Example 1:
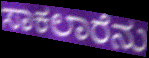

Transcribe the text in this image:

ಸಾಕಲಾರೆನು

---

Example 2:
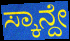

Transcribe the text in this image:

ಸ್ಕಾನ್ದೇ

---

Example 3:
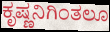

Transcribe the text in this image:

ಕೃಷ್ಣನಿಗಿಂತಲೂ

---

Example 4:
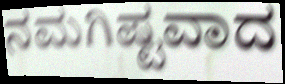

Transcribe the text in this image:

ನಮಗಿಷ್ಟವಾದ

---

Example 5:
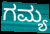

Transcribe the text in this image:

ಗಮ್ಯ